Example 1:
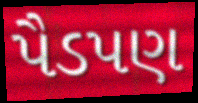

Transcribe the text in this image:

પૈડપણ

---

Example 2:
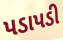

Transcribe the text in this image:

પડાપડી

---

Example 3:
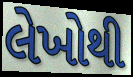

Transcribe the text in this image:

લેખોથી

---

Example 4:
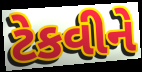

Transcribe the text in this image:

ટેકવીને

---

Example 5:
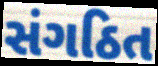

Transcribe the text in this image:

સંગઠિત